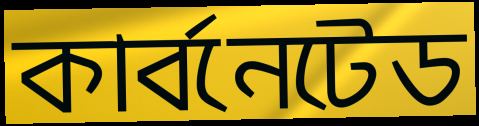
কার্বনেটেড